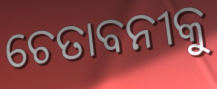
ଚେତାବନୀକୁ